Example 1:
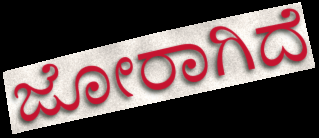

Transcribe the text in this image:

ಜೋರಾಗಿದೆ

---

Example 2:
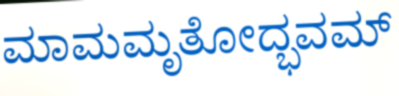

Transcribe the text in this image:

ಮಾಮಮೃತೋದ್ಭವಮ್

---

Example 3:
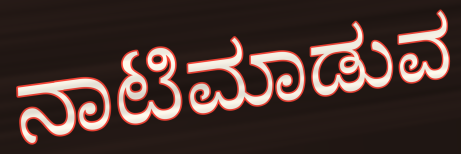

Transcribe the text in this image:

ನಾಟಿಮಾಡುವ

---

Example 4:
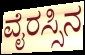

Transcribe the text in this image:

ವೈರಸ್ಸಿನ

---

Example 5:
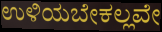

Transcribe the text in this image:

ಉಳಿಯಬೇಕಲ್ಲವೇ